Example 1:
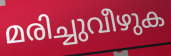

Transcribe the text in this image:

മരിച്ചുവീഴുക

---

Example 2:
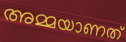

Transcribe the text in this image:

അമ്മയാണത്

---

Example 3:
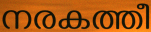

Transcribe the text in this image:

നരകത്തീ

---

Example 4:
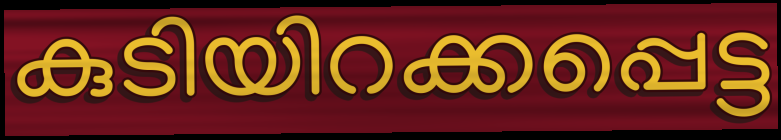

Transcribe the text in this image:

കുടിയിറക്കപ്പെട്ട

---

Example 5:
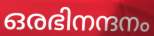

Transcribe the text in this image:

ഒരഭിനന്ദനം